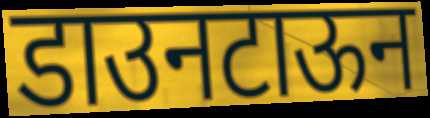
डाउनटाऊन